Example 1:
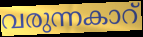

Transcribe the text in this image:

വരുന്നകാറ്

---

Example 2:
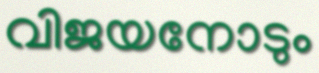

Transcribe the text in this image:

വിജയനോടും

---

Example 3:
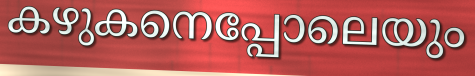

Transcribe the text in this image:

കഴുകനെപ്പോലെയും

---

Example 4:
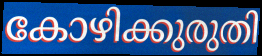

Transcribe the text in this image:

കോഴിക്കുരുതി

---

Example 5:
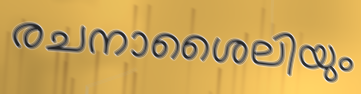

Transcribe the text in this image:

രചനാശൈലിയും